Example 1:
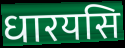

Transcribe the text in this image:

धारयसि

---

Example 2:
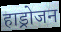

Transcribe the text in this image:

हाड्रोजन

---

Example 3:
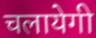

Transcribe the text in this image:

चलायेगी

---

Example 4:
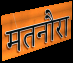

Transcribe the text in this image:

मतनौरा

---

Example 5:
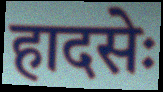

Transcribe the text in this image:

हादसेः